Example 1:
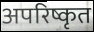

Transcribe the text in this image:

अपरिष्कृत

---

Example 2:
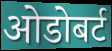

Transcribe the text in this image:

ओडोबर्ट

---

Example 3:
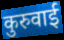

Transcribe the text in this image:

कुरुवाई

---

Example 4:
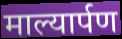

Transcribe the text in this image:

माल्यार्पण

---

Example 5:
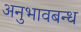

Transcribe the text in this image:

अनुभावबन्ध